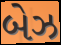
બેઝ